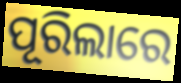
ପୂରିଲାରେ